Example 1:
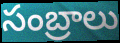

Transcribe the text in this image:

సంబ్రాలు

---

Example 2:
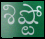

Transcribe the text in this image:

శిష్టో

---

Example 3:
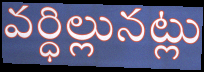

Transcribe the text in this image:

వర్ధిల్లునట్లు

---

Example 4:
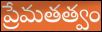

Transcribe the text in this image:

ప్రేమతత్వం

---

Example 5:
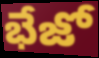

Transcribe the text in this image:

భేజో